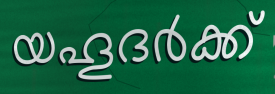
യഹൂദർക്ക്